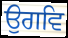
ਉਗਵਿ